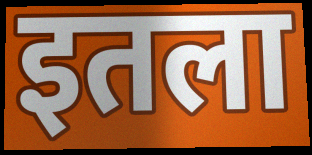
इतला